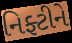
નિફ્ટીને